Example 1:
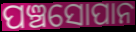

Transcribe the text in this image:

ପଞ୍ଚସୋପାନ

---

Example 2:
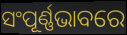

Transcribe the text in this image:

ସଂପୂର୍ଣ୍ଣଭାବରେ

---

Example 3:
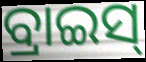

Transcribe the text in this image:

ବ୍ରାଇସ୍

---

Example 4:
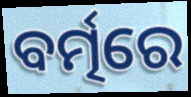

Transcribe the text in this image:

ବର୍ତ୍ମରେ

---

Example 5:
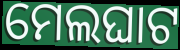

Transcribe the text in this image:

ମେଲଘାଟ